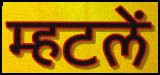
म्हटलें